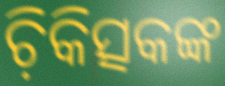
ଚ଼ିକିତ୍ସକଙ୍କ